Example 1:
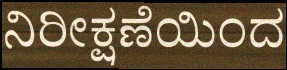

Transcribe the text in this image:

ನಿರೀಕ್ಷಣೆಯಿಂದ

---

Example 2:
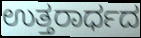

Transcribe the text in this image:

ಉತ್ತರಾರ್ಧದ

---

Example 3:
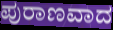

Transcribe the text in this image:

ಪುರಾಣವಾದ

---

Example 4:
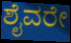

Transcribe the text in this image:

ಶೈವರೇ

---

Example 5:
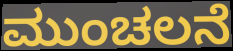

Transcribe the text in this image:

ಮುಂಚಲನೆ